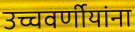
उच्चवर्णीयांना